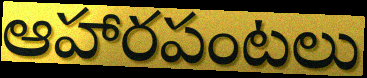
ఆహారపంటలు